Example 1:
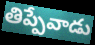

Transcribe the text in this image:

తిప్పేవాడు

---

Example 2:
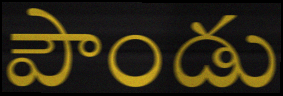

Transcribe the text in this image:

పౌండు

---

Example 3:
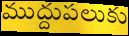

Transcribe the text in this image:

ముద్దుపలుకు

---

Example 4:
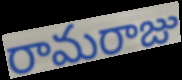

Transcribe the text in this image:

రామరాజు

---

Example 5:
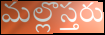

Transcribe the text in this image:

మల్లొస్తరు